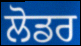
ਲੋਡਰ